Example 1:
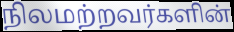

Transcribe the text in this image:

நிலமற்றவர்களின்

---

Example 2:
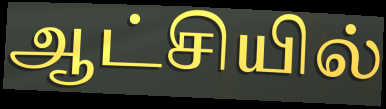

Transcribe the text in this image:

ஆட்சியில்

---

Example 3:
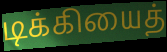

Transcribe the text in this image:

டிக்கியைத்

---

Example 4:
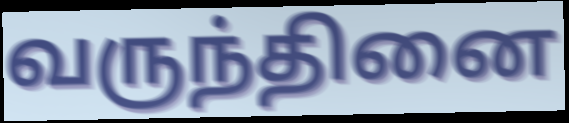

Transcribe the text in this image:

வருந்தினை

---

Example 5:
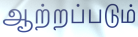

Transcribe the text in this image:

ஆற்றப்படும்